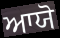
ਆਯੋ